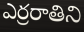
ఎర్రరాతిని